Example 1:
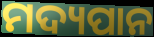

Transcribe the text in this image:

ମଦ୍ୟପାନ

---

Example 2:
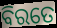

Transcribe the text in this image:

ବିରତେ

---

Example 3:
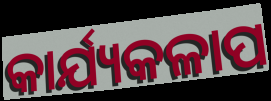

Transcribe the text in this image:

କାର୍ଯ୍ୟକଳାପ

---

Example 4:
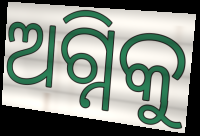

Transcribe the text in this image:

ଅଗ୍ନିକୁ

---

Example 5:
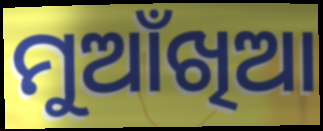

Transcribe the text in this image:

ମୁଆଁଖିଆ